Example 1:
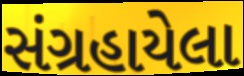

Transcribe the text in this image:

સંગ્રહાયેલા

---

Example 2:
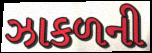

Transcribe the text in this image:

ઝાકળની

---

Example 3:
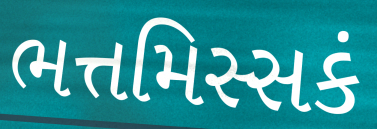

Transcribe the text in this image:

ભત્તમિસ્સકં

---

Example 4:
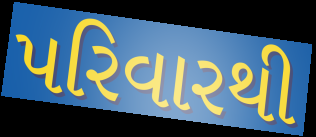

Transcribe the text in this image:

પરિવારથી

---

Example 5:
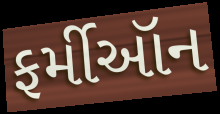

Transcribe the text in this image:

ફર્મીઑન